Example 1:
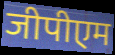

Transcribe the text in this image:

जीपीएम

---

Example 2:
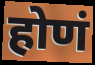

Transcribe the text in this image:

होणं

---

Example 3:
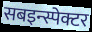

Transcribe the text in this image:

सबइन्स्पेक्टर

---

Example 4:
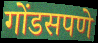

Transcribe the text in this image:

गोंडसपणे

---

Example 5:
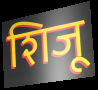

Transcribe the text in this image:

शिजू